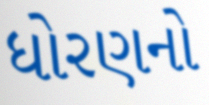
ધોરણનો